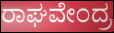
ರಾಘವೇಂದ್ರ